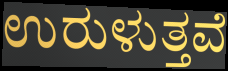
ಉರುಳುತ್ತವೆ